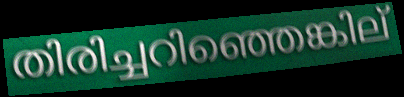
തിരിച്ചറിഞ്ഞെങ്കില്